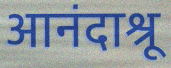
आनंदाश्रू